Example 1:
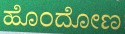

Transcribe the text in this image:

ಹೊಂದೋಣ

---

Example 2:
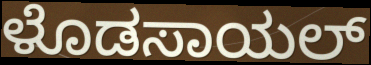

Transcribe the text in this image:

ಳೊಡಸಾಯಲ್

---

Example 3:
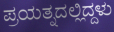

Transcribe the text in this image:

ಪ್ರಯತ್ನದಲ್ಲಿದ್ದಳು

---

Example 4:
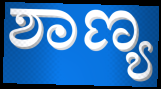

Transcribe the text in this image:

ಶಾಣ್ಯ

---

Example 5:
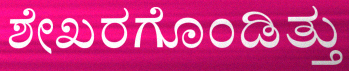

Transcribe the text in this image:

ಶೇಖರಗೊಂಡಿತ್ತು